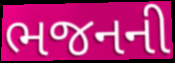
ભજનની